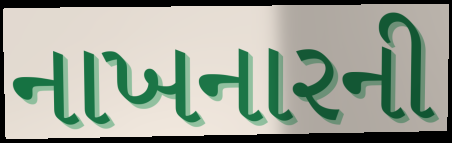
નાખનારની